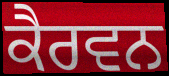
ਕੈਰਵਨ